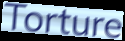
Torture